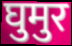
घुमुर